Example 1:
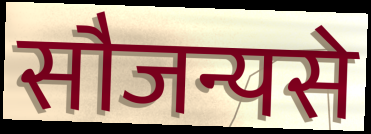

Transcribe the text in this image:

सौजन्यसे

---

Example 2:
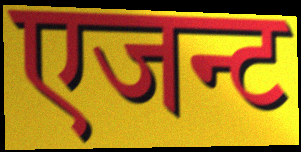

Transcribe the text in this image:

एजन्ट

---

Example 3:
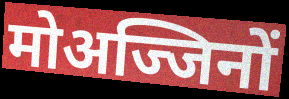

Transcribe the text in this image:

मोअज्जिनों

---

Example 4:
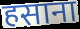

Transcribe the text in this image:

हसाना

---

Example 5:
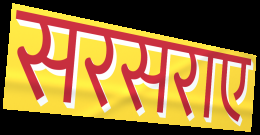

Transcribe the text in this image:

सरसराए